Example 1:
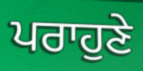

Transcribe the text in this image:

ਪਰਾਹੁਣੇ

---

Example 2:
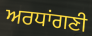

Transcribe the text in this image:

ਅਰਧਾਂਗਣੀ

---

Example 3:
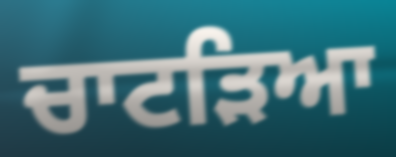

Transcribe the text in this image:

ਚਾਟੜਿਆ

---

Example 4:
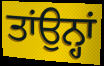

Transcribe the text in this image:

ਤਾਂਉਨ੍ਹਾਂ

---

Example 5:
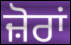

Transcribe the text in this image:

ਜ਼ੋਰਾਂ